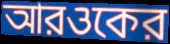
আরওকের